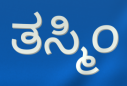
ತಸ್ಮಿಂ